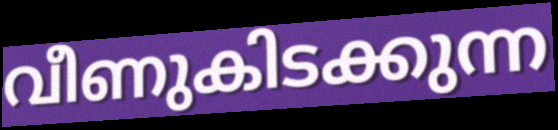
വീണുകിടക്കുന്ന